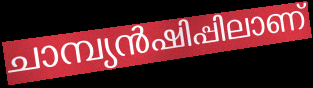
ചാമ്പ്യൻഷിപ്പിലാണ്